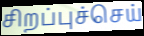
சிறப்புச்செய்